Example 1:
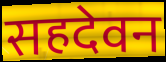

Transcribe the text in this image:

सहदेवन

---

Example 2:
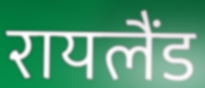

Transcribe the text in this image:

रायलैंड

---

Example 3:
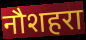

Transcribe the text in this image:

नौशहरा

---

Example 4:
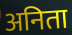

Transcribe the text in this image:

अनिता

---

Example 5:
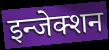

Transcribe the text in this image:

इन्जेक्शन